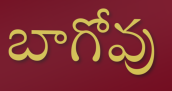
బాగోవు